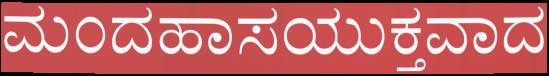
ಮಂದಹಾಸಯುಕ್ತವಾದ